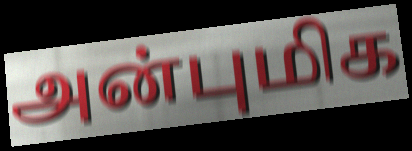
அன்புமிக